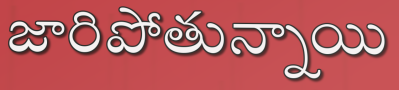
జారిపోతున్నాయి